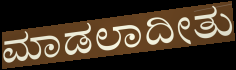
ಮಾಡಲಾದೀತು